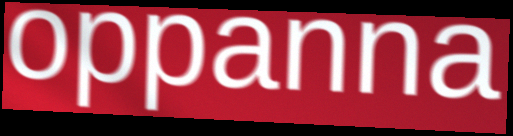
oppanna